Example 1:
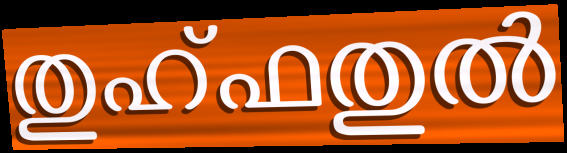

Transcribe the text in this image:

തുഹ്ഫതുൽ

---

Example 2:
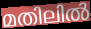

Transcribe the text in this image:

മതിലിൽ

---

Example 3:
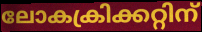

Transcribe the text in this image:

ലോകക്രിക്കറ്റിന്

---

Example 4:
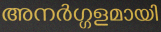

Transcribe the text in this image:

അനർഗ്ഗളമായി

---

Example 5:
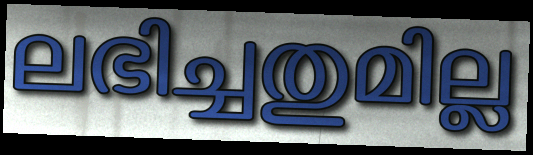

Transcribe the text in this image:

ലഭിച്ചതുമില്ല